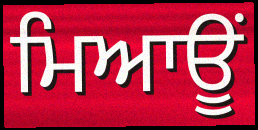
ਮਿਆਊਂ